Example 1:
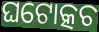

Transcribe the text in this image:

ଘଟୋତ୍କଚ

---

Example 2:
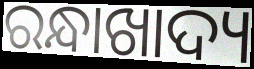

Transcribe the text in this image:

ରନ୍ଧାଖାଦ୍ୟ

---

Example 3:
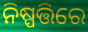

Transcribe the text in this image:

ନିଷ୍ପତ୍ତିରେ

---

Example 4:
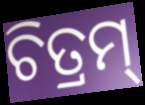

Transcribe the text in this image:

ଚିତ୍ରମ୍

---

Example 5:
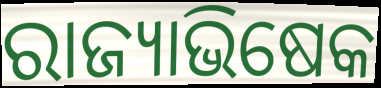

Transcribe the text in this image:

ରାଜ୍ୟାଭିଷେକ